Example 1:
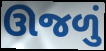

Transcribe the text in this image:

ઊજળું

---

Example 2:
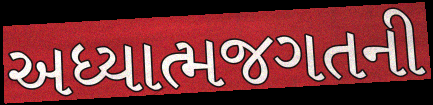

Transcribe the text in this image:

અધ્યાત્મજગતની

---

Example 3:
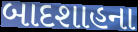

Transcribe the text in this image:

બાદશાહના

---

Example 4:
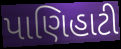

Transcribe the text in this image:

પાણિહાટી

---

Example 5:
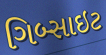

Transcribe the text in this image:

ગિબ્સાઇટ